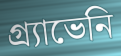
গ্র্যাভেনি